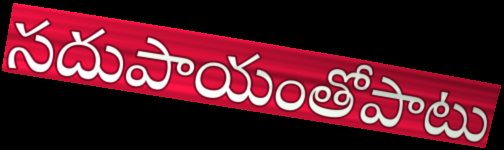
సదుపాయంతోపాటు